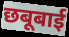
छबूबाई